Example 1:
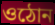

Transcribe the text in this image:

ওঠোন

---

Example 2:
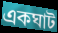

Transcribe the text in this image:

একঘাট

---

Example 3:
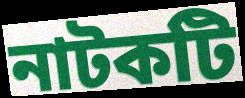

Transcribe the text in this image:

নাটকটি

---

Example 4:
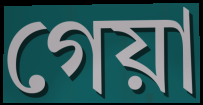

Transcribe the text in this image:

গেয়া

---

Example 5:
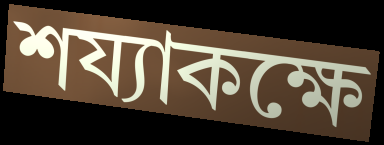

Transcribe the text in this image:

শয্যাকক্ষে